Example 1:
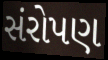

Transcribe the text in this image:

સંરોપણ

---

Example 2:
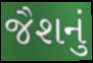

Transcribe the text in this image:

જૈશનું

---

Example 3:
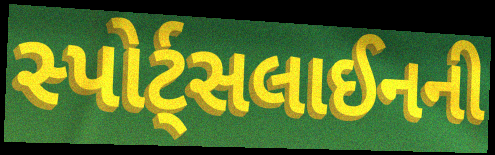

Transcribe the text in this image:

સ્પોર્ટ્સલાઈનની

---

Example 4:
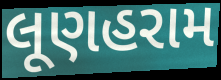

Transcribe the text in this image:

લૂણહરામ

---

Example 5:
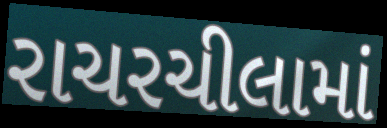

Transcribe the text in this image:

રાચરચીલામાં